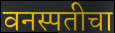
वनस्पतीचा